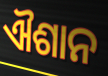
ଐଶାନ